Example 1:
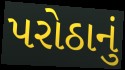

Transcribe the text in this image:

પરોઠાનું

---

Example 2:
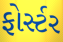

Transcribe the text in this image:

ફોર્સ્ટર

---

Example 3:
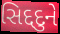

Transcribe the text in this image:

સિદ્દદુને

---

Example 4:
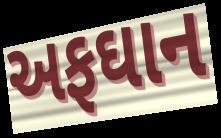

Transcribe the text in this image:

અફઘાન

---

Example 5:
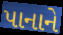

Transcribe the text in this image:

પાનાને